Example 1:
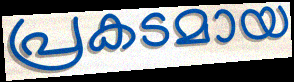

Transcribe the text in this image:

പ്രകടമായ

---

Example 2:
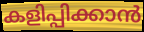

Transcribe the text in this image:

കളിപ്പിക്കാൻ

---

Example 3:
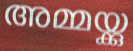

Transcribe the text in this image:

അമ്മയ്ക്കു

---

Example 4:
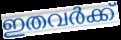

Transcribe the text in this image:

ഇതവർക്ക്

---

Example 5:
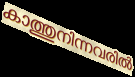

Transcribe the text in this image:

കാത്തുനിന്നവരിൽ